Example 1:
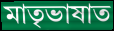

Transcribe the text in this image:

মাতৃভাষাত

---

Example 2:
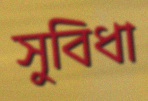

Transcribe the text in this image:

সুবিধা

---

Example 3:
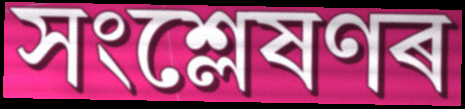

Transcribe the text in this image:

সংশ্লেষণৰ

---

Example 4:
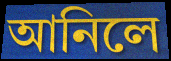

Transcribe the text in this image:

আনিলে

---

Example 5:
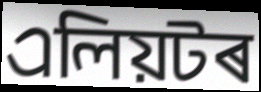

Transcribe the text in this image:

এলিয়টৰ